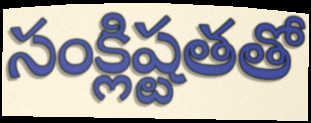
సంక్లిష్టతతో